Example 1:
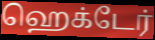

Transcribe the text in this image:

ஹெக்டேர்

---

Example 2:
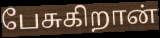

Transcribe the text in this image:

பேசுகிறான்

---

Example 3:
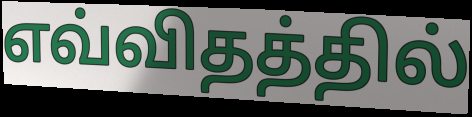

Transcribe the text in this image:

எவ்விதத்தில்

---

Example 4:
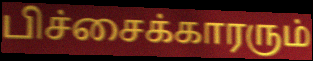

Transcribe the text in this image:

பிச்சைக்காரரும்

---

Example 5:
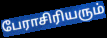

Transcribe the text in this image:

பேராசிரியரும்